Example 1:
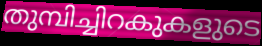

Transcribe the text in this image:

തുമ്പിച്ചിറകുകളുടെ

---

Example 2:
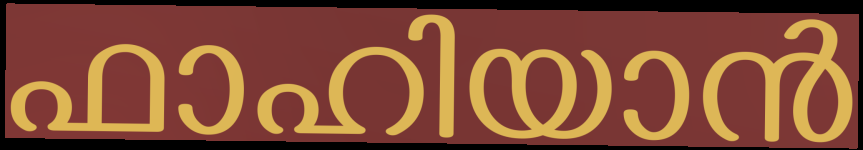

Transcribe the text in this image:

ഫാഹിയാൻ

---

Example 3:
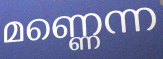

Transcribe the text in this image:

മണ്ണെന്ന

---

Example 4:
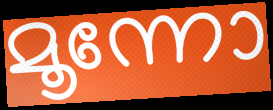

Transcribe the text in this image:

മൂന്നോ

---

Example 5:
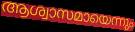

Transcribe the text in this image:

ആശ്വാസമായെന്നും